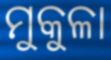
ମୁକୁଳା